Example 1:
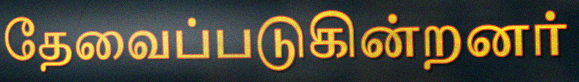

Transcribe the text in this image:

தேவைப்படுகின்றனர்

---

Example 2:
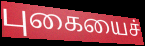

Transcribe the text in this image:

புகையைச்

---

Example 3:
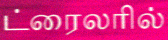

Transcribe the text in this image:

ட்ரைலரில்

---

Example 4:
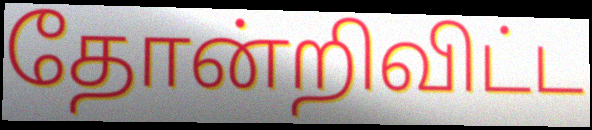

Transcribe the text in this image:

தோன்றிவிட்ட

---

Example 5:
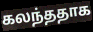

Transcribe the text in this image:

கலந்ததாக